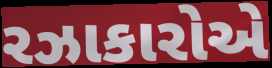
રઝાકારોએ